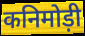
कनिमोड़ी